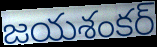
జయశంకర్